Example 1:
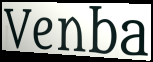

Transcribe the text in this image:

Venba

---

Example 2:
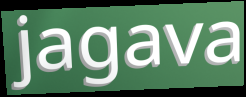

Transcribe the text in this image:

jagava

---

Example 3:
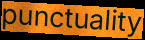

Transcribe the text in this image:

punctuality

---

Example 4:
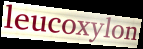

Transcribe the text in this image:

leucoxylon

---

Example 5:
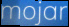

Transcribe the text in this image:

mojar